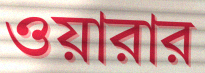
ওয়ারার